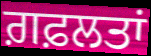
ਗ਼ਫ਼ਲਤਾਂ